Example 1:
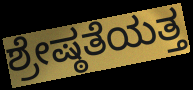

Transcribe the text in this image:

ಶ್ರೇಷ್ಠತೆಯತ್ತ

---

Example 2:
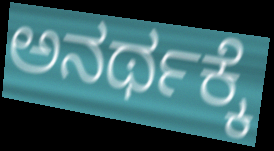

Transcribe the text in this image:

ಅನರ್ಥಕ್ಕೆ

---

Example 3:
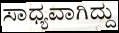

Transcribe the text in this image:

ಸಾಧ್ಯವಾಗಿದ್ದು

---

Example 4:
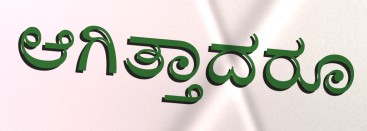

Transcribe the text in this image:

ಆಗಿತ್ತಾದರೂ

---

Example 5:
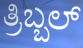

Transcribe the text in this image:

ತ್ರಿಬ್ಬಲ್